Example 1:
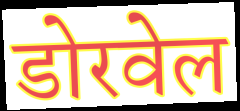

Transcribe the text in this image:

डोरवेल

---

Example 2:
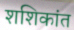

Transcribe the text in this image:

शशिकांत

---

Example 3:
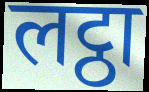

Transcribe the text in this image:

लट्ठा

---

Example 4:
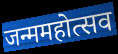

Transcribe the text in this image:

जन्ममहोत्सव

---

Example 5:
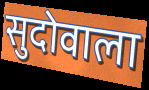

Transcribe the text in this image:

सुदोवाला